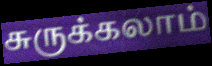
சுருக்கலாம்